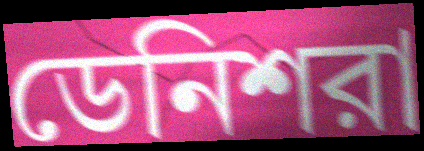
ডেনিশরা